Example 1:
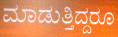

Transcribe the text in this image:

ಮಾಡುತ್ತಿದ್ದರೂ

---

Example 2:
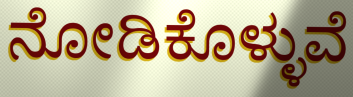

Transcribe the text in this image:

ನೋಡಿಕೊಳ್ಳುವೆ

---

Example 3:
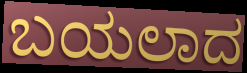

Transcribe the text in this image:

ಬಯಲಾದ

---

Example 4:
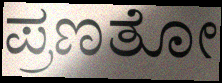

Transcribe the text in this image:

ಪ್ರಣತೋ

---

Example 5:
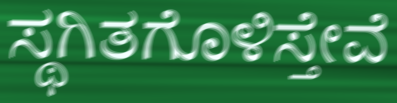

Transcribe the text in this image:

ಸ್ಥಗಿತಗೊಳಿಸ್ತೇವೆ